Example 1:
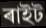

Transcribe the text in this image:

ৰাইট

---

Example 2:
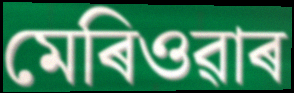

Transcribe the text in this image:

মেৰিওৱাৰ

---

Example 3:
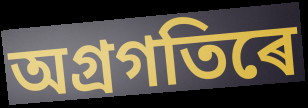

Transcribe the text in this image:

অগ্ৰগতিৰে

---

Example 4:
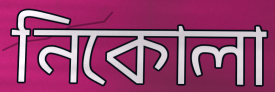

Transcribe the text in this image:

নিকোলা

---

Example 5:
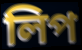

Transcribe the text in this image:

লিপ